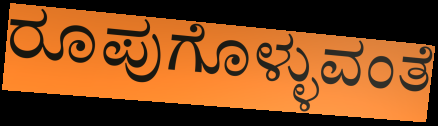
ರೂಪುಗೊಳ್ಳುವಂತೆ